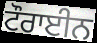
ਟੌਰਾਈਨ